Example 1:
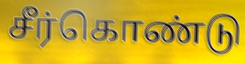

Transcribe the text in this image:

சீர்கொண்டு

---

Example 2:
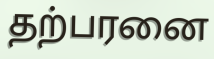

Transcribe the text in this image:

தற்பரனை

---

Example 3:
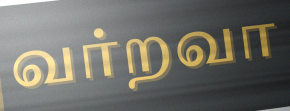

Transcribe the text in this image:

வர்றவா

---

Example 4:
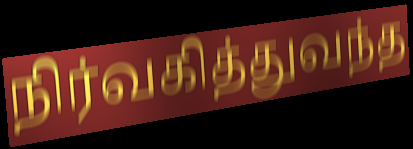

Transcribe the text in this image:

நிர்வகித்துவந்த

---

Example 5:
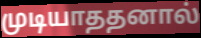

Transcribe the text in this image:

முடியாததனால்